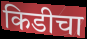
किडीचा